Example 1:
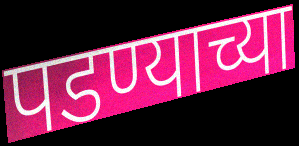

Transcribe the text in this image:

पडण्याच्या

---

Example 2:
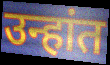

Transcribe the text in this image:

उन्हांत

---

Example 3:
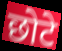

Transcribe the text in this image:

छोटे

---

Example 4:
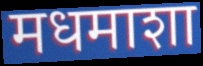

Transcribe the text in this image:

मधमाशा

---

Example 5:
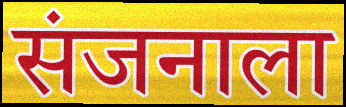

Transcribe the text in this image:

संजनाला